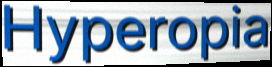
Hyperopia